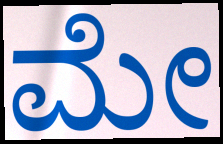
ಮೇ